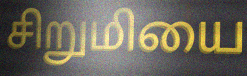
சிறுமியை